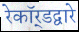
रेकॉर्डद्वारे